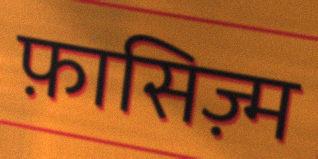
फ़ासिज़्म